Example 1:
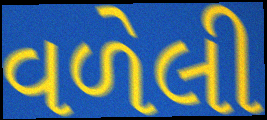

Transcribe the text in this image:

વળેલી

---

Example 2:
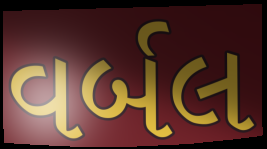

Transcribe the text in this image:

વર્બલ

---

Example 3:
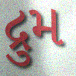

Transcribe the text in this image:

દ્રુમ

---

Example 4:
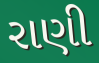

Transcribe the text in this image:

રાણી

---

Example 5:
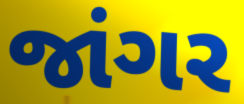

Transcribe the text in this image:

જાંગર